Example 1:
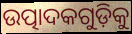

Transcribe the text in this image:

ଉତ୍ପାଦକଗୁଡ଼ିକୁ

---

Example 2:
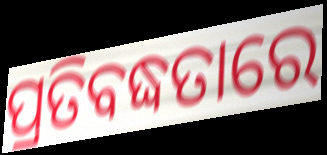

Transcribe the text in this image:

ପ୍ରତିବଦ୍ଧତାରେ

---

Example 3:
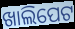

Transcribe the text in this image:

ଖାଲିପେଟ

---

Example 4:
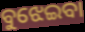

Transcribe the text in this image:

ବୁଝେଇବା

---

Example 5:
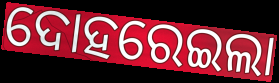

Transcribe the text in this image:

ଦୋହରେଇଲା